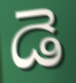
డె